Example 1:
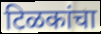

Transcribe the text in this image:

टिळकांचा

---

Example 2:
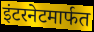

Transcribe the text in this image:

इंटरनेटमार्फत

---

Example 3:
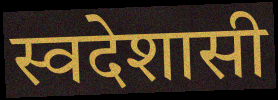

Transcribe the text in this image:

स्वदेशासी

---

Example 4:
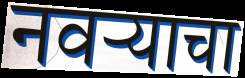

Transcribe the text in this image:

नवऱ्याचा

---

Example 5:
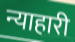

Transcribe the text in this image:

न्याहारी